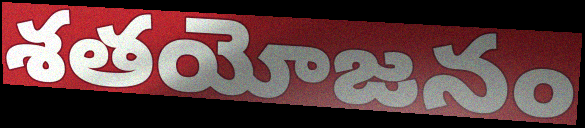
శతయోజనం